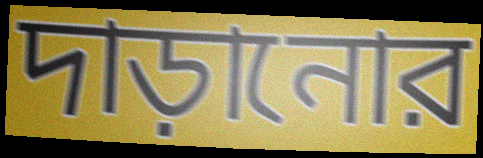
দাড়ানোর